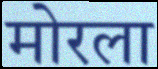
मोरला